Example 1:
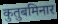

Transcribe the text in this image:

कुतुबमिनार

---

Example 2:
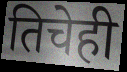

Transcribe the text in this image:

तिचेही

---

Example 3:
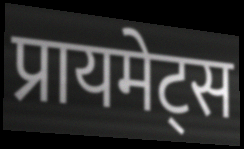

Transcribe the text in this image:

प्रायमेट्स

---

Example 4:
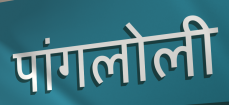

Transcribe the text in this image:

पांगलोली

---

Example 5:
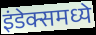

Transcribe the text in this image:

इंडेक्समध्ये